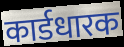
कार्डधारक